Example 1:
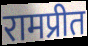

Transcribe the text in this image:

रामप्रीत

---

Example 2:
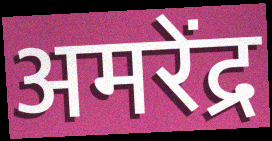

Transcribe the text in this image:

अमरेंद्र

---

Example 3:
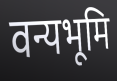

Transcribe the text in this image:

वन्यभूमि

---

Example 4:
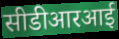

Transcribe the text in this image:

सीडीआरआई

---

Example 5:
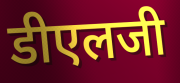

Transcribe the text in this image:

डीएलजी